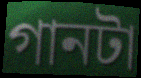
গানটা